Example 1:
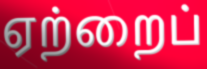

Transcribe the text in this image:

ஏற்றைப்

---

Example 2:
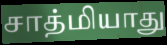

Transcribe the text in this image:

சாத்மியாது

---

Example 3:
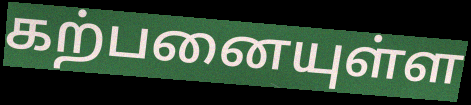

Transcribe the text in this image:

கற்பனையுள்ள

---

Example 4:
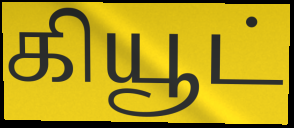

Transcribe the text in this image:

கியூட்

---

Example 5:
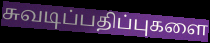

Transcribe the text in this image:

சுவடிப்பதிப்புகளை